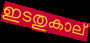
ഇടതുകാല്